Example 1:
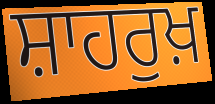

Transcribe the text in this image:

ਸ਼ਾਹਰੁਖ਼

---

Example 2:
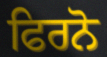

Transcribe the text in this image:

ਫਿਰਨੋ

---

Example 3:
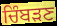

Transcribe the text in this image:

ਚਿੰਬੜਣ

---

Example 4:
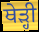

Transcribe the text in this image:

ਥੇੜ੍ਹੀ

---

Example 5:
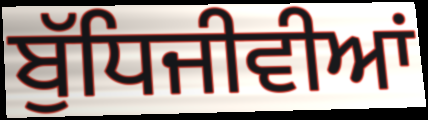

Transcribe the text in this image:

ਬੁੱਧਿਜੀਵੀਆਂ